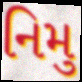
નિમુ